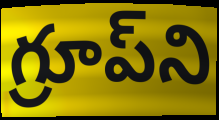
గ్రూప్‌ని